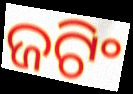
ଜଟିଂ